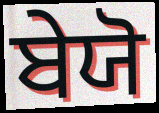
ਬੇਯੋ